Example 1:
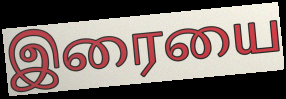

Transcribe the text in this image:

இரையை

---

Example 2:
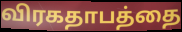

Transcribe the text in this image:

விரகதாபத்தை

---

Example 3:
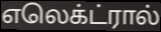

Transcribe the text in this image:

எலெக்ட்ரால்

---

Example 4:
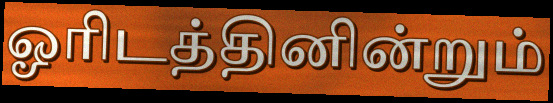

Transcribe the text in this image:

ஓரிடத்தினின்றும்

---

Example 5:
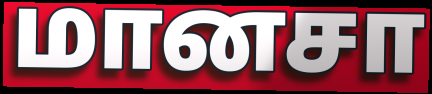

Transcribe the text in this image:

மானசா